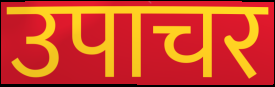
उपाचर